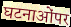
घटनाओंपर